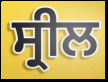
ਸ੍ਰੀਲ